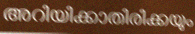
അറിയിക്കാതിരിക്കയും